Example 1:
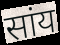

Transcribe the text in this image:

सांय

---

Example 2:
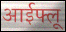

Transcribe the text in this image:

आईफ्लू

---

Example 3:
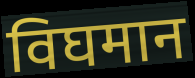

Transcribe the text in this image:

विघमान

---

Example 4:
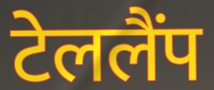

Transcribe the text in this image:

टेललैंप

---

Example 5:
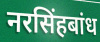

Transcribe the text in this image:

नरसिंहबांध